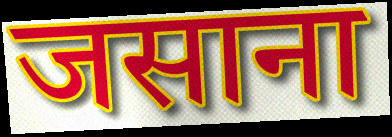
जसाना